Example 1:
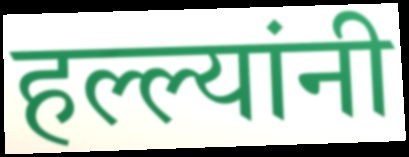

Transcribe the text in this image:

हल्ल्यांनी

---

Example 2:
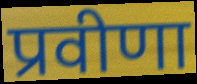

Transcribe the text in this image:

प्रवीणा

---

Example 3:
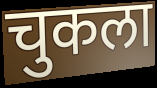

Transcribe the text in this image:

चुकला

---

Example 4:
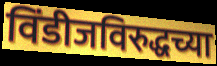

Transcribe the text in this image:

विंडीजविरुद्धच्या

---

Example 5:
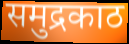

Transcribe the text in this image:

समुद्रकाठ